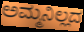
ಅಮ್ಮನಿಲ್ಲದ